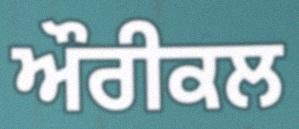
ਔਰੀਕਲ